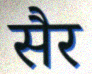
सैर